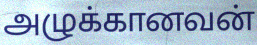
அழுக்கானவன்